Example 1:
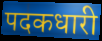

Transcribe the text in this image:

पदकधारी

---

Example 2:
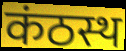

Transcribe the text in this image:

कंठस्थ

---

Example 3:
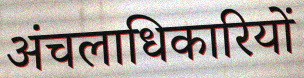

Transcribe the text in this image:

अंचलाधिकारियों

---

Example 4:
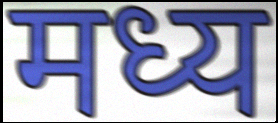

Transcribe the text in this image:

मध्य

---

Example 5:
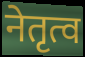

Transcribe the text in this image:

नेतृत्‍व